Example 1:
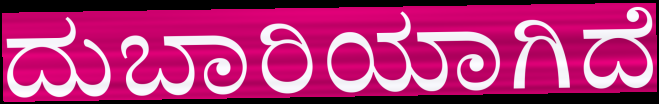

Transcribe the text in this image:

ದುಬಾರಿಯಾಗಿದೆ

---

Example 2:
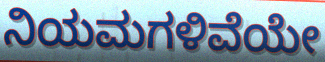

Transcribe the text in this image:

ನಿಯಮಗಳಿವೆಯೇ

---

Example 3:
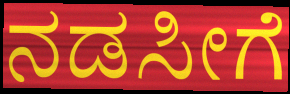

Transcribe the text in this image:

ನಡಸೀಗೆ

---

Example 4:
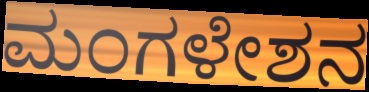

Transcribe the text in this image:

ಮಂಗಳೇಶನ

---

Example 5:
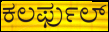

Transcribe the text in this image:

ಕಲರ್ಫುಲ್